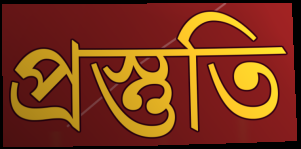
প্ৰস্তুতি